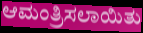
ಆಮಂತ್ರಿಸಲಾಯಿತು